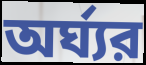
অর্ঘ্যর